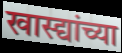
खास्द्यांच्या